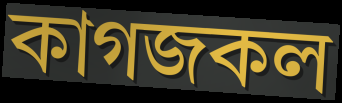
কাগজকল